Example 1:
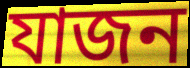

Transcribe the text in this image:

যাজন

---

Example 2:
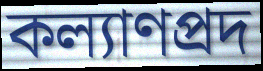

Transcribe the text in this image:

কল্যাণপ্রদ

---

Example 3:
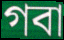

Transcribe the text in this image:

গবা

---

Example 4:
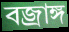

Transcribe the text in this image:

বজ্রাঙ্গ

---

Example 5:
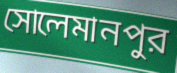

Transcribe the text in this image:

সোলেমানপুর